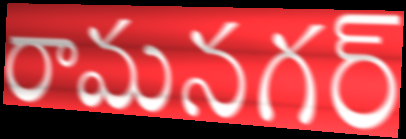
రామనగర్